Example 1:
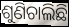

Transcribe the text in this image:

ଶୁଣିଚାଲିଛି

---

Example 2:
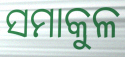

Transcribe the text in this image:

ସମାକୁଳ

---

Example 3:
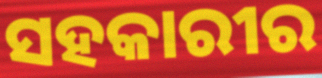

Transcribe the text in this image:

ସହକାରୀର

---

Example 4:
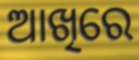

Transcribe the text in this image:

ଆଖିରେ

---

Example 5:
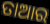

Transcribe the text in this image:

ତାଆର